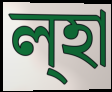
ল্হা